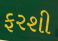
ફરશી